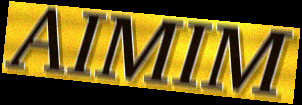
AIMIM